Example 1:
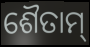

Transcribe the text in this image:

ଶୈତାମ୍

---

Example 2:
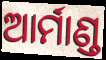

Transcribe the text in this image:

ଆର୍ମାଣ୍ଡ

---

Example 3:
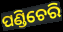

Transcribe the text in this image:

ପଣ୍ଡିଚେରି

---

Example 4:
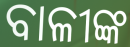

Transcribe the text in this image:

ବାଳୀଙ୍କ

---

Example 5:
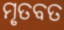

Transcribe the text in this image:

ମୃତବତ